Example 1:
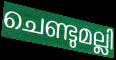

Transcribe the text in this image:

ചെണ്ടുമല്ലി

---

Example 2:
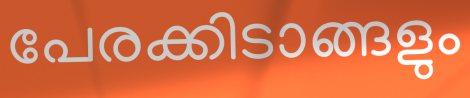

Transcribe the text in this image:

പേരക്കിടാങ്ങളും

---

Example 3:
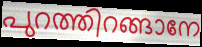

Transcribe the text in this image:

പുറത്തിറങ്ങാനേ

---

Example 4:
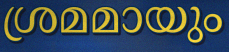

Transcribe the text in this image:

ശ്രമമായും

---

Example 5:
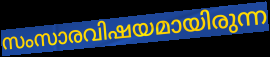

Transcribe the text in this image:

സംസാരവിഷയമായിരുന്ന